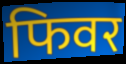
फिवर